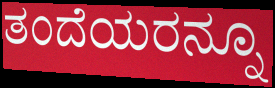
ತಂದೆಯರನ್ನೂ